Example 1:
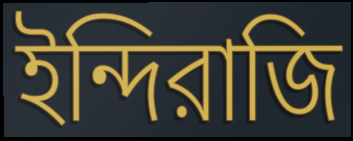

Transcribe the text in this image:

ইন্দিরাজি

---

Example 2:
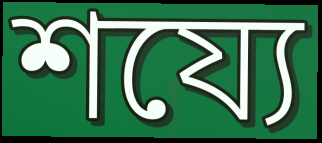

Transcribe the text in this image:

শয্যে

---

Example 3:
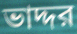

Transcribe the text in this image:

ভাদ্দর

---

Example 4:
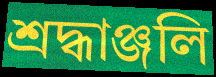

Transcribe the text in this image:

শ্রদ্ধাঞ্জলি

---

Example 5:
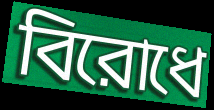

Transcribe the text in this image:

বিরোধে